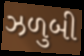
ઝળુબી